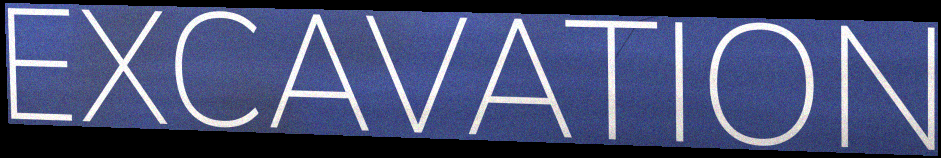
EXCAVATION